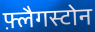
फ़्लैगस्टोन